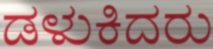
ಡಳುಕಿದರು